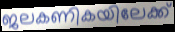
ജലകണികയിലേക്ക്